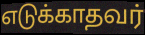
எடுக்காதவர்